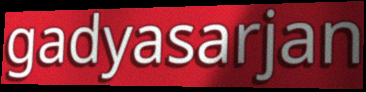
gadyasarjan